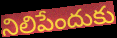
నిలిపేందుకు